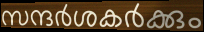
സന്ദർശകർക്കും